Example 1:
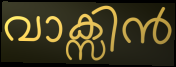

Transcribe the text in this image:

വാക്സിൻ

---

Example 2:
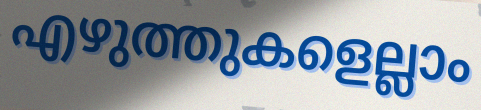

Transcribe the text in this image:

എഴുത്തുകളെല്ലാം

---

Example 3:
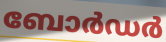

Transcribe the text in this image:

ബോർഡർ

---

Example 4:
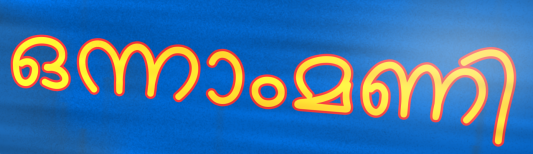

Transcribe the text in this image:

ഒന്നാംമണി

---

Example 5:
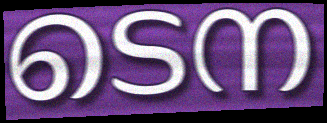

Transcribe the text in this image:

ടെന